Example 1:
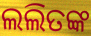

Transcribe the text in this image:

ଲଲିତଙ୍କ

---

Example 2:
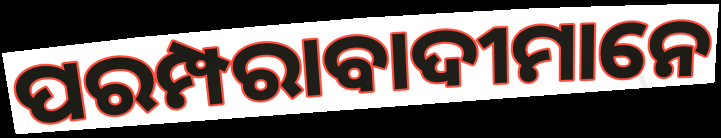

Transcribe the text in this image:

ପରମ୍ପରାବାଦୀମାନେ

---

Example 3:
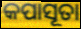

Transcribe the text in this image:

କପାସୂତା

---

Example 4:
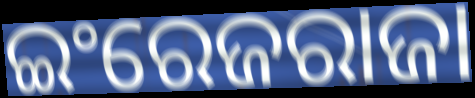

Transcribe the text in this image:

ଇଂରେଜରାଜା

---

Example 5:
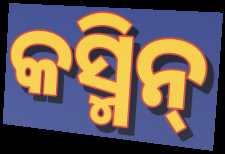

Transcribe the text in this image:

କସ୍ମିନ୍